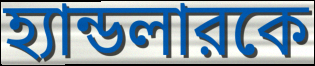
হ্যান্ডলারকে